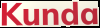
Kunda